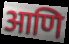
आणि